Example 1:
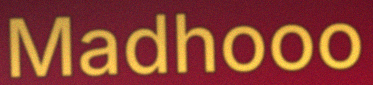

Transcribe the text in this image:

Madhooo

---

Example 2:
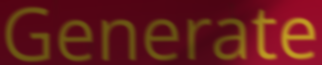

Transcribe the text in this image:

Generate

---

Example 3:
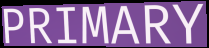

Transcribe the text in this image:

PRIMARY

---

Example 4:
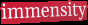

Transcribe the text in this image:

immensity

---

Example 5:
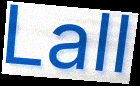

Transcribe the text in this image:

Lall